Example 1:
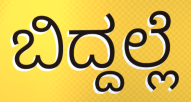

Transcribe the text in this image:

ಬಿದ್ದಲ್ಲೆ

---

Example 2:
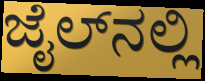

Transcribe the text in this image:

ಜೈಲ್‌ನಲ್ಲಿ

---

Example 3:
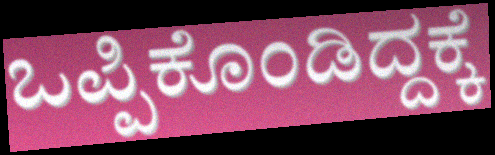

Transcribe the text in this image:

ಒಪ್ಪಿಕೊಂಡಿದ್ದಕ್ಕೆ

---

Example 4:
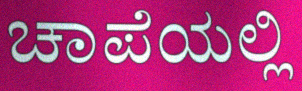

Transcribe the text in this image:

ಚಾಪೆಯಲ್ಲಿ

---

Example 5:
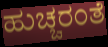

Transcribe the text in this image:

ಹುಚ್ಚರಂತೆ